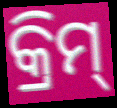
କ୍ରିମ୍